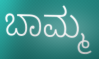
ಬಾಮ್ಮ